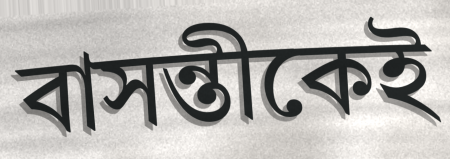
বাসন্তীকেই